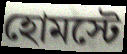
হোমস্টে